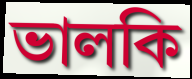
ভালকি